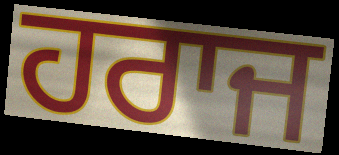
ਹਰਾਜ